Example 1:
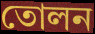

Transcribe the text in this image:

তোলন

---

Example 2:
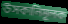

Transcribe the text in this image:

উসকানিমূলক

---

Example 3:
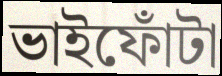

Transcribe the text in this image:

ভাইফোঁটা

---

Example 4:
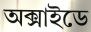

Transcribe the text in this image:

অক্সাইডে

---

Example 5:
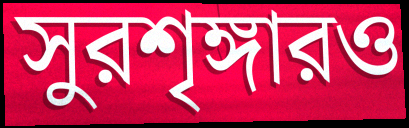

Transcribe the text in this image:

সুরশৃঙ্গারও